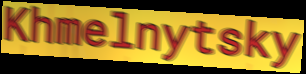
Khmelnytsky